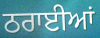
ਠਰਾਈਆਂ